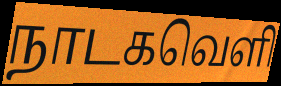
நாடகவெளி